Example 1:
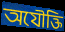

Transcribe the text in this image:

অযৌক্তি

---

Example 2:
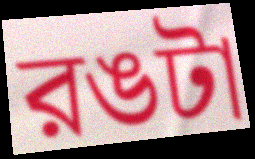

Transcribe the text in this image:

রঙটা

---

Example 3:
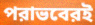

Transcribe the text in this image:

পরাভবেরই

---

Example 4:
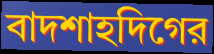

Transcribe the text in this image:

বাদশাহদিগের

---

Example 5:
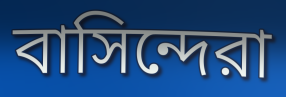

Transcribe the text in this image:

বাসিন্দেরা